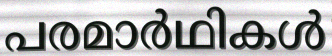
പരമാർഥികൾ